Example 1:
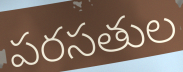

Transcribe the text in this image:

పరసతుల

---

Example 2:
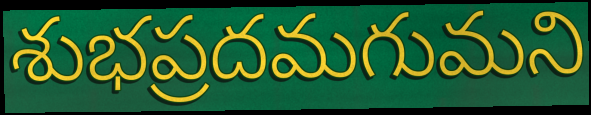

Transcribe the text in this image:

శుభప్రదమగుమని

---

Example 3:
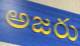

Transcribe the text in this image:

అజరు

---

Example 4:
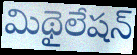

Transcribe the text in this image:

మిథైలేషన్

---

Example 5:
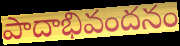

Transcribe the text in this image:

పాదాభివందనం